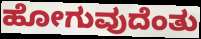
ಹೋಗುವುದೆಂತು